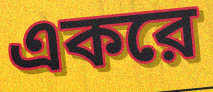
একরে